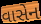
વાસેન